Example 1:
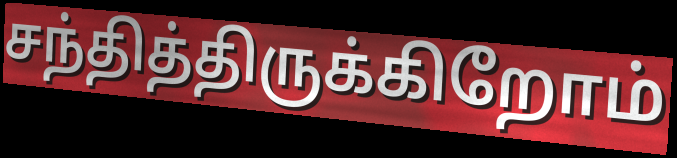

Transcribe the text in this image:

சந்தித்திருக்கிறோம்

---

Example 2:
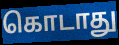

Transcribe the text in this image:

கொடாது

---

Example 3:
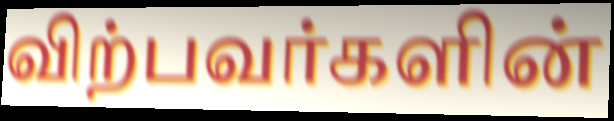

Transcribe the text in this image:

விற்பவர்களின்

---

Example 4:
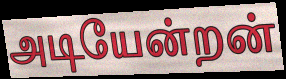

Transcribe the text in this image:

அடியேன்றன்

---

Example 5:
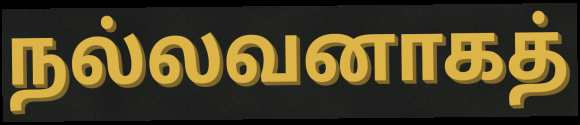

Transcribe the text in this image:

நல்லவனாகத்